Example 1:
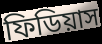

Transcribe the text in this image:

ফিডিয়াস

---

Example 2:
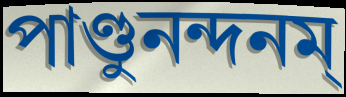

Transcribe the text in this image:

পাণ্ডুনন্দনম্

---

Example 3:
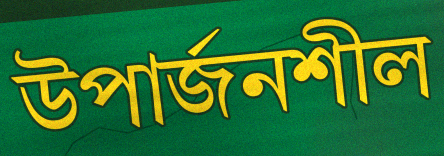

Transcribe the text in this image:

উপার্জনশীল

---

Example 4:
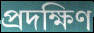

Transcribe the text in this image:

প্রদক্ষিণ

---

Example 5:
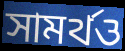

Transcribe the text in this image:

সামর্থও